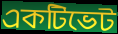
একটিভেট